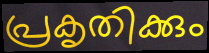
പ്രകൃതിക്കും